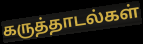
கருத்தாடல்கள்